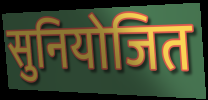
सुनियोजित